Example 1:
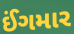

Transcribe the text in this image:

ઈંગમાર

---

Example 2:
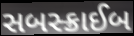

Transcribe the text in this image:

સબસ્ક્રાઈબ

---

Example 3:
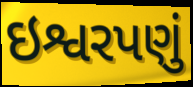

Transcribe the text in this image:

ઇશ્વરપણું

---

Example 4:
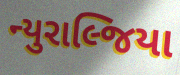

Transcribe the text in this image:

ન્યુરાલ્જિયા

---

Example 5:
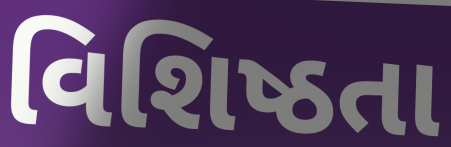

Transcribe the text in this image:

વિશિષ્ઠતા